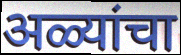
अळ्यांचा